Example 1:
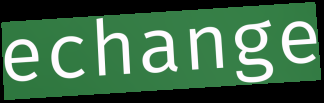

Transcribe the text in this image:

echange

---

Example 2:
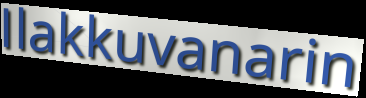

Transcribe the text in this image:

Ilakkuvanarin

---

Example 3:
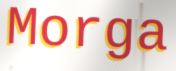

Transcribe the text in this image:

Morga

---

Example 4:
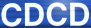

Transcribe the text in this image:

CDCD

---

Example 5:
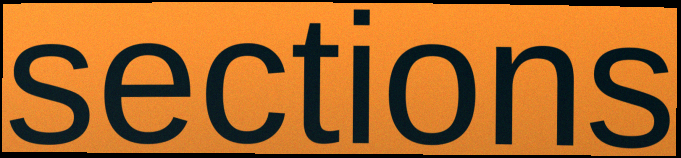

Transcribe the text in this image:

sections